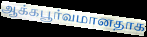
ஆக்கபூர்வமானதாக